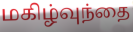
மகிழ்வுந்தை